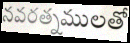
నవరత్నములతో